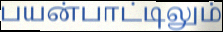
பயன்பாட்டிலும்